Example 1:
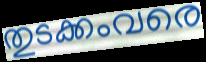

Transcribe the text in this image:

തുടക്കംവരെ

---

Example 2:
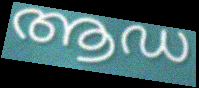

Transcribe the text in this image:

ആഡ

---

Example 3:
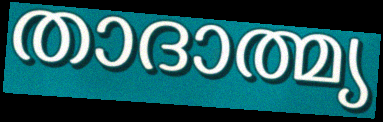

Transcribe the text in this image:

താദാത്മ്യ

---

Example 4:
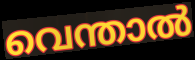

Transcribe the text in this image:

വെന്താൽ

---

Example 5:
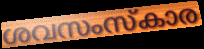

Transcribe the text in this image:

ശവസംസ്‌കാര